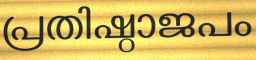
പ്രതിഷ്ഠാജപം